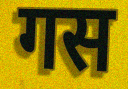
गस